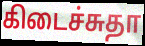
கிடைச்சுதா